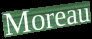
Moreau